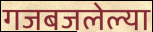
गजबजलेल्या